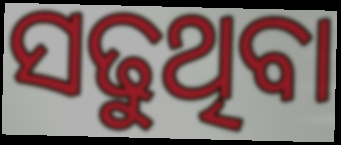
ସଢୁଥିବା